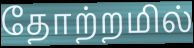
தோற்றமில்